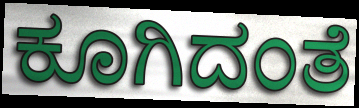
ಕೂಗಿದಂತೆ